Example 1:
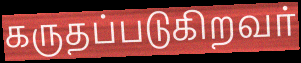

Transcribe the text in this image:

கருதப்படுகிறவர்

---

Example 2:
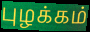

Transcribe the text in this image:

புழக்கம்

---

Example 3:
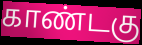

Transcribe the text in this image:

காண்டகு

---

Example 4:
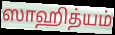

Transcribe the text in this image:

ஸாஹித்யம்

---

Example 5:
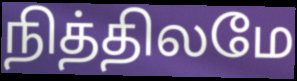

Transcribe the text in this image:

நித்திலமே